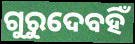
ଗୁରୁଦେବହିଁ